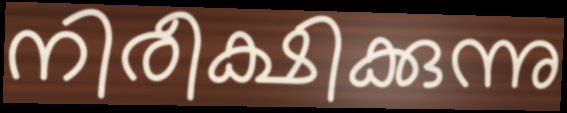
നിരീക്ഷിക്കുന്നു